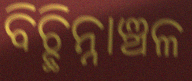
ବିଚ୍ଛିନ୍ନାଞ୍ଚଳ